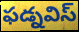
ఫడ్నవిస్